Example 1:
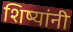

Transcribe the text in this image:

शिष्यांनी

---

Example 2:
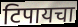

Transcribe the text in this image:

टिपायचा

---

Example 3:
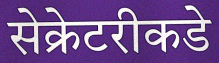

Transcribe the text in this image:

सेक्रेटरीकडे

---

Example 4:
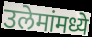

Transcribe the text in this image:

उलेमांमध्ये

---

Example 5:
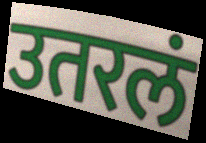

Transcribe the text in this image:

उतरलं